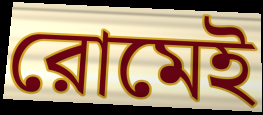
রোমেই